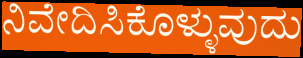
ನಿವೇದಿಸಿಕೊಳ್ಳುವುದು